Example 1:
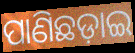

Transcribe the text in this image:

ପାଣିଛଡ଼ାଇ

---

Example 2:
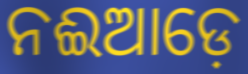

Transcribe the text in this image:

ନଈଆଡ଼େ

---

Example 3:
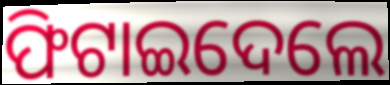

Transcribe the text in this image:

ଫିଟାଇଦେଲେ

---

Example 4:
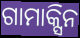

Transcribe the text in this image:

ଗାମାକ୍ସିନ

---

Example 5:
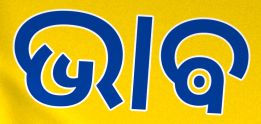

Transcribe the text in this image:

ଭାଵ